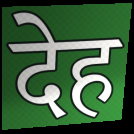
देह